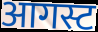
आगस्ट